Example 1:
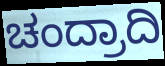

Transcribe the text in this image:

ಚಂದ್ರಾದಿ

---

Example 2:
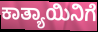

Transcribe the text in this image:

ಕಾತ್ಯಾಯಿನಿಗೆ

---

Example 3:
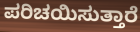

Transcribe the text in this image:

ಪರಿಚಯಿಸುತ್ತಾರೆ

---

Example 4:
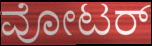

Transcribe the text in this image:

ವೋಟರ್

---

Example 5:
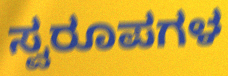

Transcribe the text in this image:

ಸ್ವರೂಪಗಳ